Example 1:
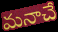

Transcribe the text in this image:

మనాచే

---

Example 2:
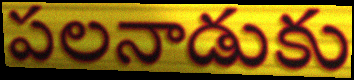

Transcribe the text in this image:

పలనాడుకు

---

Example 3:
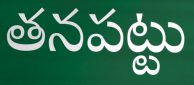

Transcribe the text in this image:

తనపట్టు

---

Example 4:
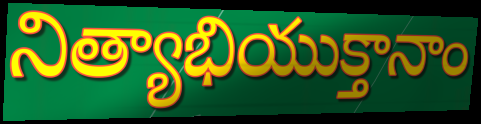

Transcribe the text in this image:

నిత్యాభియుక్తానాం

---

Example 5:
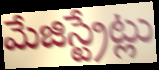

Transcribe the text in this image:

మేజిస్ట్రేట్లు